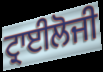
ਟ੍ਰਾਈਲੋਜੀ